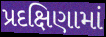
પ્રદક્ષિણામાં